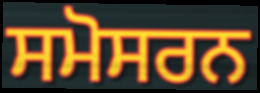
ਸਮੋਸਰਨ